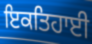
ਇਕਤਿਹਾਈ